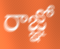
రాజ్ఞో